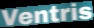
Ventris